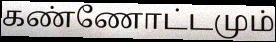
கண்ணோட்டமும்